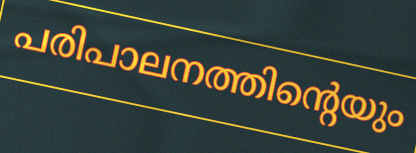
പരിപാലനത്തിന്റെയും